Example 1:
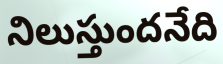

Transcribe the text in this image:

నిలుస్తుందనేది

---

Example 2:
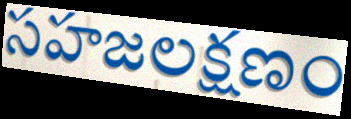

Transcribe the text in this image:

సహజలక్షణం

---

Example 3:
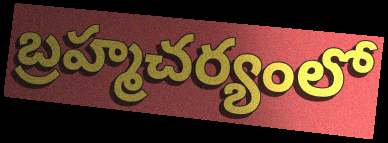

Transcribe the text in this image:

బ్రహ్మచర్యంలో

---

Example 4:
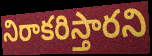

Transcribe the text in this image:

నిరాకరిస్తారని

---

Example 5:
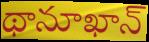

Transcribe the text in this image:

థానూఖాన్